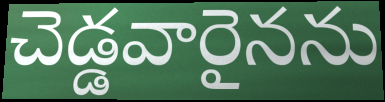
చెడ్డవారైనను